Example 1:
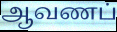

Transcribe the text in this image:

ஆவணப்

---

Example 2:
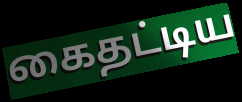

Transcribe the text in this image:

கைதட்டிய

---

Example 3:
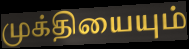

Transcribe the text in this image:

முக்தியையும்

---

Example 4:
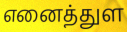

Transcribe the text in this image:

எனைத்துள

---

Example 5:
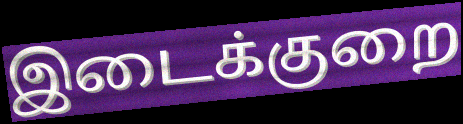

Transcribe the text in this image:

இடைக்குறை